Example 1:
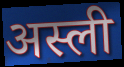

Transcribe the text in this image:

अस्ली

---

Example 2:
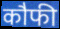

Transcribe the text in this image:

कौफी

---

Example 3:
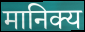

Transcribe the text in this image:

मानिक्य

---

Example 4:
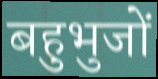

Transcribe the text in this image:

बहुभुजों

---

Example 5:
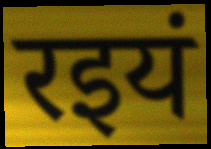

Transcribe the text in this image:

रइयं